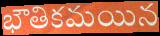
భౌతికమయిన